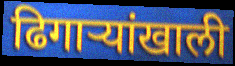
ढिगाऱ्यांखाली